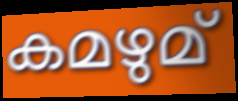
കമഴുമ്